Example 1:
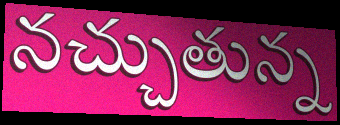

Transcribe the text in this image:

నచ్చుతున్న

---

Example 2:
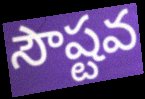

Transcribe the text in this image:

సౌష్టవ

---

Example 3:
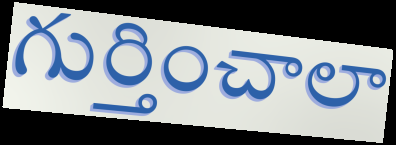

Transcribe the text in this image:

గుర్తించాలా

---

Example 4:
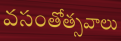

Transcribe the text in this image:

వసంతోత్సవాలు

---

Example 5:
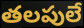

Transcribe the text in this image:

తలపులే